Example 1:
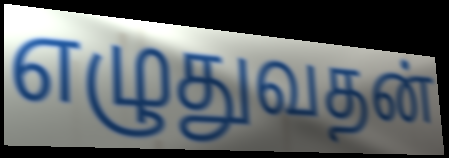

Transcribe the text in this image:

எழுதுவதன்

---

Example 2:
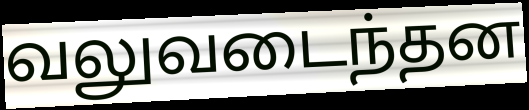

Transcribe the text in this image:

வலுவடைந்தன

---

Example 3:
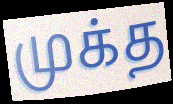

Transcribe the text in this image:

முக்த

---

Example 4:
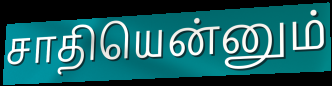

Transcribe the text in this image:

சாதியென்னும்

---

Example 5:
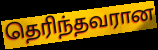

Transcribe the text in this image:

தெரிந்தவரான